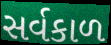
સર્વકાળ